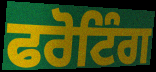
ਫਰੋਟਿੰਗ